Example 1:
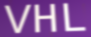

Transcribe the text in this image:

VHL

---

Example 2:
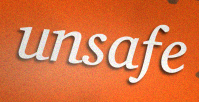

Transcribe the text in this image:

unsafe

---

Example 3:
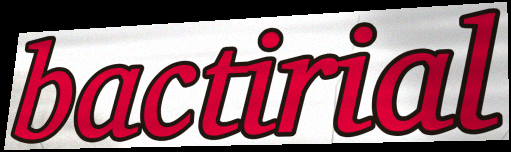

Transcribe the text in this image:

bactirial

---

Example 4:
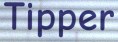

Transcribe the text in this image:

Tipper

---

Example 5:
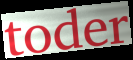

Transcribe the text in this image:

toder